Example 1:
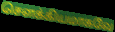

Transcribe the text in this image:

சௌக்கியமாகவே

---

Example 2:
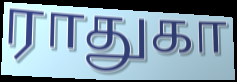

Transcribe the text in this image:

ராதுகா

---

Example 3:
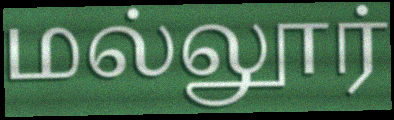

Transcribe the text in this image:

மல்லூர்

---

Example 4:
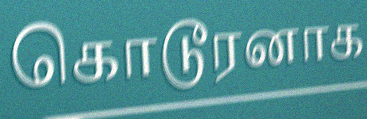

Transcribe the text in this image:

கொடூரனாக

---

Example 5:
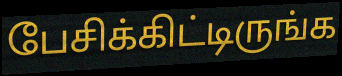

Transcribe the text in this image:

பேசிக்கிட்டிருங்க